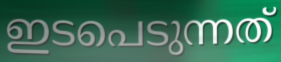
ഇടപെടുന്നത്